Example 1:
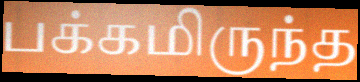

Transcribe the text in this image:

பக்கமிருந்த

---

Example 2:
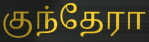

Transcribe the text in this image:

குந்தேரா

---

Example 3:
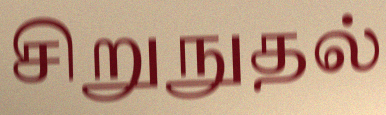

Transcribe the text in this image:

சிறுநுதல்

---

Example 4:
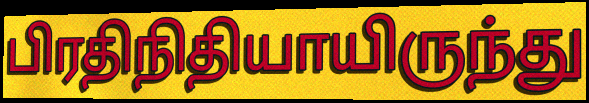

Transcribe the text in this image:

பிரதிநிதியாயிருந்து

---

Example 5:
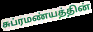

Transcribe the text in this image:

சுப்ரமண்யத்தின்